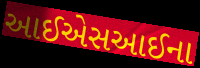
આઈએસઆઈના